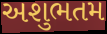
અશુભતમ